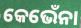
କେଭେଁନା